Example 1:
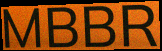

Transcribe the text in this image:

MBBR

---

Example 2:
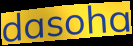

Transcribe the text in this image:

dasoha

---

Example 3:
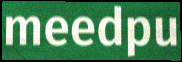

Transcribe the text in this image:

meedpu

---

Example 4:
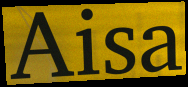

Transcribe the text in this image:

Aisa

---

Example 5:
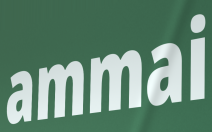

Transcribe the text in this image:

ammai